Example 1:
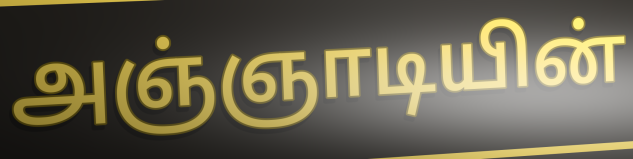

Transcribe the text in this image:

அஞ்ஞாடியின்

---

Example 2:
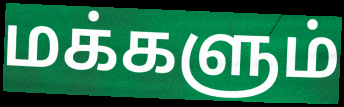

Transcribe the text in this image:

மக்களும்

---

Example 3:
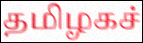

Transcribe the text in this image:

தமிழகச்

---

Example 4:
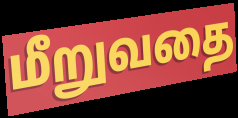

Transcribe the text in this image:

மீறுவதை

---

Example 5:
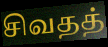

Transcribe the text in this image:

சிவதத்